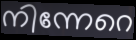
നിന്നേറെ